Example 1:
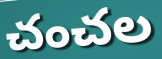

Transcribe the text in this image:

చంచల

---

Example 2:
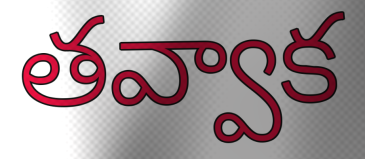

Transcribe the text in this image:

తవ్వాక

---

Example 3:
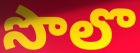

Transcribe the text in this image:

సొలొ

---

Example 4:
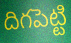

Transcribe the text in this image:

దిగపెట్టి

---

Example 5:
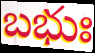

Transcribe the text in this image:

బభుః